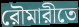
রৌমারীতে